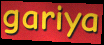
gariya